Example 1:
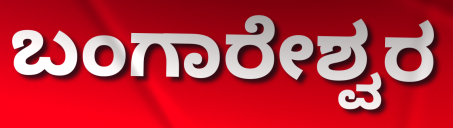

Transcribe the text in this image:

ಬಂಗಾರೇಶ್ವರ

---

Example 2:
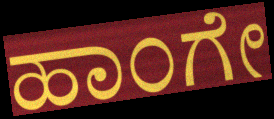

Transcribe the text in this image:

ಹಾಂಗೇ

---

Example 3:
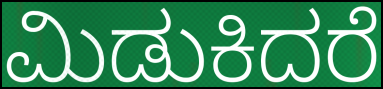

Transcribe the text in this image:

ಮಿಡುಕಿದರೆ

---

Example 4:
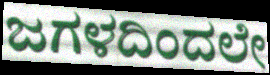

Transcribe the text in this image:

ಜಗಳದಿಂದಲೇ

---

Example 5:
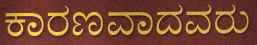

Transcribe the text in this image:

ಕಾರಣವಾದವರು